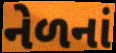
નેળનાં